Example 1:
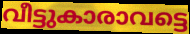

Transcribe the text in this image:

വീട്ടുകാരാവട്ടെ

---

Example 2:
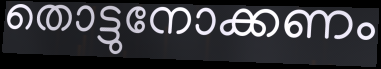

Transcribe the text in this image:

തൊട്ടുനോക്കണം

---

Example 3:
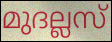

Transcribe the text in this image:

മുദല്ലസ്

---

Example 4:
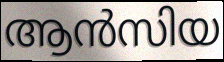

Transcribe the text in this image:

ആൻസിയ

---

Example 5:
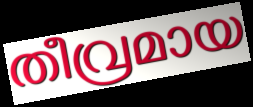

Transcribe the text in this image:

തീവ്രമായ